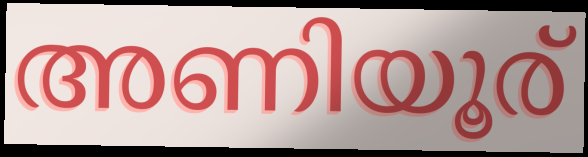
അണിയൂര്